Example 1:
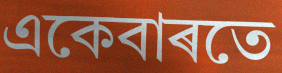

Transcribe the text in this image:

একেবাৰতে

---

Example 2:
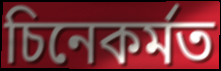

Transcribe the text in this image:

চিনেকৰ্মত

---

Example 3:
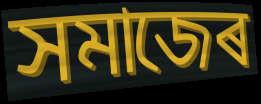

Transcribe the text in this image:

সমাজেৰ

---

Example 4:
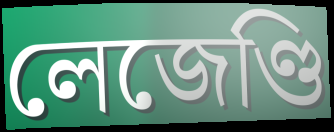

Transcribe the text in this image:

লেজেণ্ডি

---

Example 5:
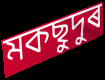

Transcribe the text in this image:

মকছুদুৰ